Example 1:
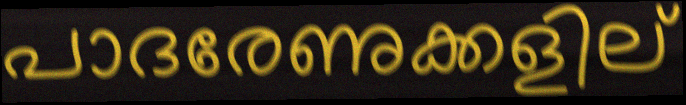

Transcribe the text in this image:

പാദരേണുക്കളില്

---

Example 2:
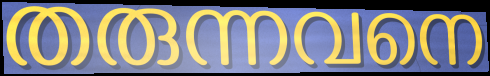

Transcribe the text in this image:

തരുന്നവനെ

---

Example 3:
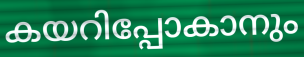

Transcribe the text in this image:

കയറിപ്പോകാനും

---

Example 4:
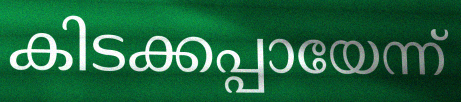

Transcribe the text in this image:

കിടക്കപ്പായേന്ന്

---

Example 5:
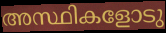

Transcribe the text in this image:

അസ്ഥികളോടു